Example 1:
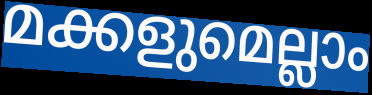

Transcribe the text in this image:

മക്കളുമെല്ലാം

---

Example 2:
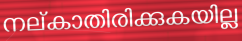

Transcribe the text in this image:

നല്‌കാതിരിക്കുകയില്ല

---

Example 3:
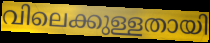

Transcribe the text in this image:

വിലെക്കുള്ളതായി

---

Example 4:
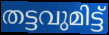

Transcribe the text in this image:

തട്ടവുമിട്ട്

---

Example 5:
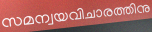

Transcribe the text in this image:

സമന്വയവിചാരത്തിനു